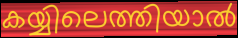
കയ്യിലെത്തിയാൽ